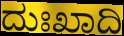
ದುಃಖಾದಿ